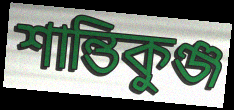
শান্তিকুঞ্জ